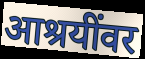
आश्रयींवर